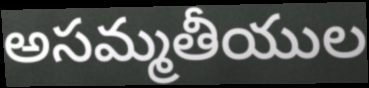
అసమ్మతీయుల